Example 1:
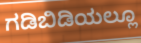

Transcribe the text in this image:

ಗಡಿಬಿಡಿಯಲ್ಲೂ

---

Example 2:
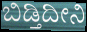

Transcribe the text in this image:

ಬಿಡ್ತಿದೀನಿ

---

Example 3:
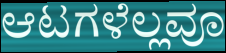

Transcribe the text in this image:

ಆಟಗಳೆಲ್ಲವೂ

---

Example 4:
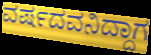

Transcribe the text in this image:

ವರ್ಷದವನಿದ್ದಾಗ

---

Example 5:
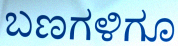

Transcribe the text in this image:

ಬಣಗಳಿಗೂ